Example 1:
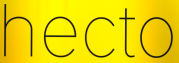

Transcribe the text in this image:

hecto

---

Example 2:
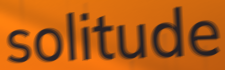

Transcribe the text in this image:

solitude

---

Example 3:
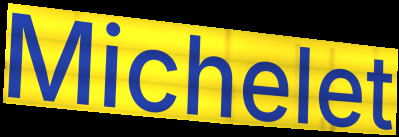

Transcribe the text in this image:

Michelet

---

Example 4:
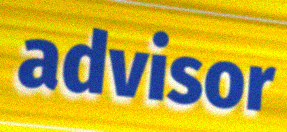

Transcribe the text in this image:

advisor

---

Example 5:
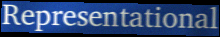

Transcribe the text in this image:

Representational